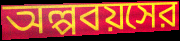
অল্পবয়সের